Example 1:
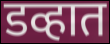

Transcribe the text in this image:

डव्हात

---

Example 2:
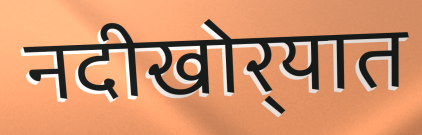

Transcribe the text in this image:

नदीखोर्‍यात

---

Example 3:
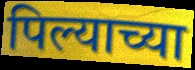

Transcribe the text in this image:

पिल्याच्या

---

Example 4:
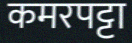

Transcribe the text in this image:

कमरपट्टा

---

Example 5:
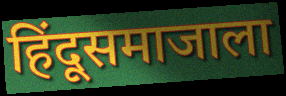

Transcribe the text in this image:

हिंदूसमाजाला